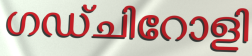
ഗഡ്ചിറോളി